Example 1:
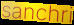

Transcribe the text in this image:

sanchri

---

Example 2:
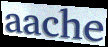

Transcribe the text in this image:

aache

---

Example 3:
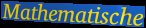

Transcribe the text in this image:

Mathematische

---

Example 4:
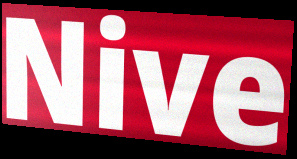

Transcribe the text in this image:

Nive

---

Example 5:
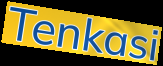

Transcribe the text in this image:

Tenkasi